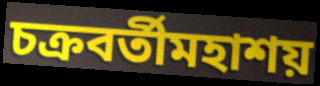
চক্রবর্তীমহাশয়